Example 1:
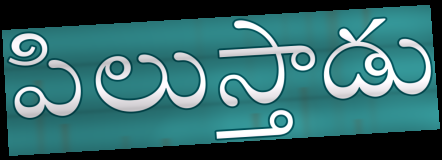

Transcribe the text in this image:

పిలుస్తాడు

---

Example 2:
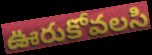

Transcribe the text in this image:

ఊరుకోవలసి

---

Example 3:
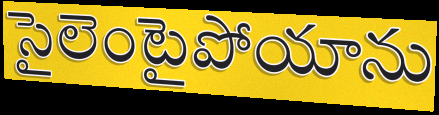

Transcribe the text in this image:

సైలెంటైపోయాను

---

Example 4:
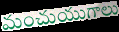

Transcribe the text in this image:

మంచుయుగాలు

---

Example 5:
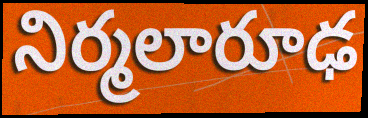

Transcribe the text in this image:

నిర్మలారూఢ